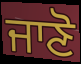
ਜਾਣੋ